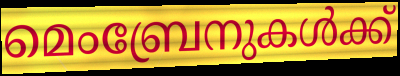
മെംബ്രേനുകൾക്ക്